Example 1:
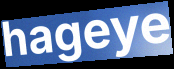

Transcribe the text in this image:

hageye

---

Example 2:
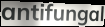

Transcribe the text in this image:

antifungal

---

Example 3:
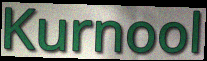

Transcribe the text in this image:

Kurnool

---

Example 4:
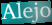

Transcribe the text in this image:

Alejo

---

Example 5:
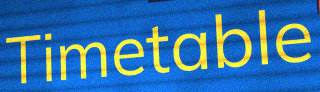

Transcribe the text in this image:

Timetable